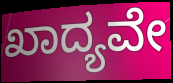
ಖಾದ್ಯವೇ